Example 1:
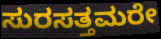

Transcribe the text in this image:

ಸುರಸತ್ತಮರೇ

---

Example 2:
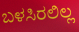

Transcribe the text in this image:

ಬಳಸಿರಲಿಲ್ಲ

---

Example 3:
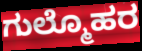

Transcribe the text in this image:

ಗುಲ್ಮೊಹರ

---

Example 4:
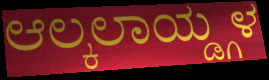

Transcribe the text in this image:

ಆಲ್ಕಲಾಯ್ಡ್ಗಳ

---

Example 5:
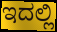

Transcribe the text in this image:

ಇದಲ್ಲಿ